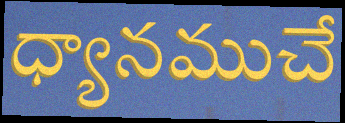
ధ్యానముచే